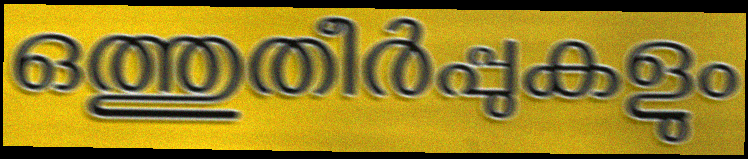
ഒത്തുതീർപ്പുകളും